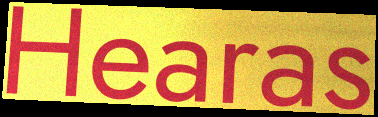
Hearas